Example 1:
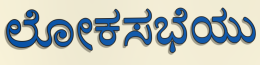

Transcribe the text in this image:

ಲೋಕಸಭೆಯು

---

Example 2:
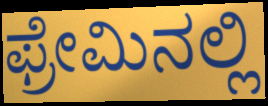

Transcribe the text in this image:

ಫ್ರೇಮಿನಲ್ಲಿ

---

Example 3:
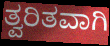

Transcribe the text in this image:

ತ್ವರಿತವಾಗಿ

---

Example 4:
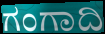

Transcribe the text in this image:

ಗಂಗಾದಿ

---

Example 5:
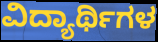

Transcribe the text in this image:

ವಿದ್ಯಾರ್ಥಿಗಳ